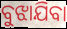
ବୁଝାଯିବା